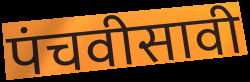
पंचवीसावी